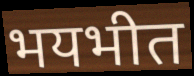
भयभीत